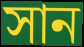
সান